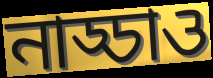
নাড্ডাও